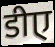
डीए